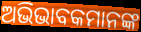
ଅଭିଭାବକମାନଙ୍କ